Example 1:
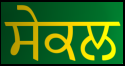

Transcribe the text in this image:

ਸੇਕਲ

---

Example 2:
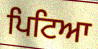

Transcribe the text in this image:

ਪਿਟਿਆ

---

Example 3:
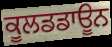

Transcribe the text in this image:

ਕੂਲਡਡਾਊਨ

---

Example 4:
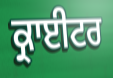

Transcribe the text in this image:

ਕ੍ਰਾਈਟਰ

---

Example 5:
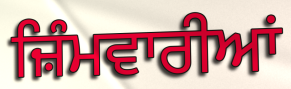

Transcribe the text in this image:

ਜ਼ਿੰਮਵਾਰੀਆਂ